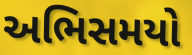
અભિસમયો